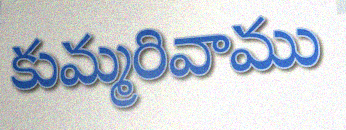
కుమ్మరివాము